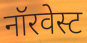
नॉरवेस्ट